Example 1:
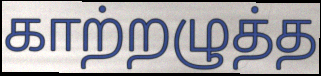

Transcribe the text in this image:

காற்றழுத்த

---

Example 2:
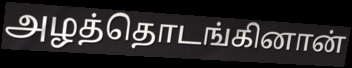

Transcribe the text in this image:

அழத்தொடங்கினான்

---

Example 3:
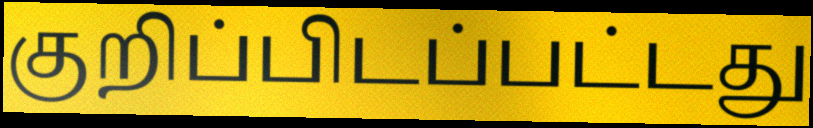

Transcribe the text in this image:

குறிப்பிடப்பட்டது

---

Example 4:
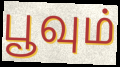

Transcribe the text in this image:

பூவும்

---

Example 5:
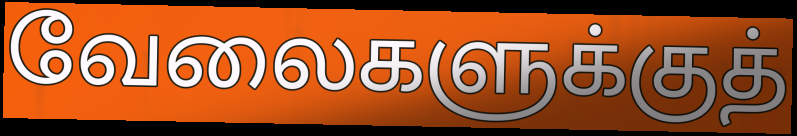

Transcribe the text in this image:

வேலைகளுக்குத்